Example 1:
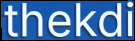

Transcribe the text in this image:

thekdi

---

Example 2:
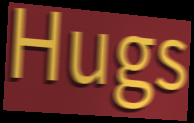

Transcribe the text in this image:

Hugs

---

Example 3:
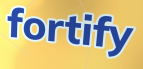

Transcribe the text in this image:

fortify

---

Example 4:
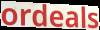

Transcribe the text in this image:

ordeals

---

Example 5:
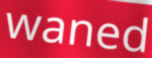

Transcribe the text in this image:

waned